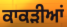
ਕਾਕੜੀਆਂ